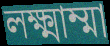
লক্ষ্মাম্মা